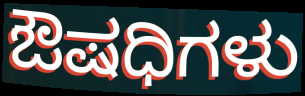
ಔಷಧಿಗಳು